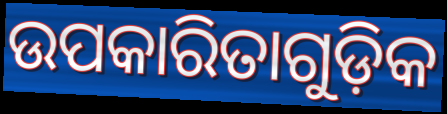
ଉପକାରିତାଗୁଡ଼ିକ